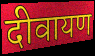
दीवायण